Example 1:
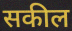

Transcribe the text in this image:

सकील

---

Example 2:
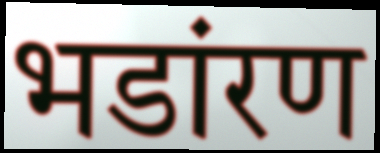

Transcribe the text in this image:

भडांरण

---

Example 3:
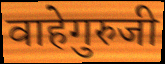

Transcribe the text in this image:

वाहेगुरुजी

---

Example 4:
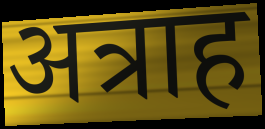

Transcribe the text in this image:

अत्राह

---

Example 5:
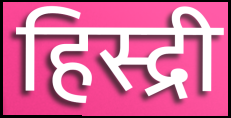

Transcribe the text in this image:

हिस्द्री